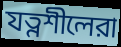
যত্নশীলেরা